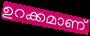
ഉറക്കമാണ്